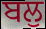
ਬਲੁ